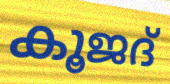
കൂജദ്